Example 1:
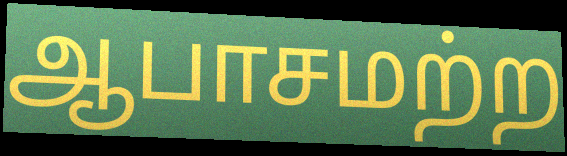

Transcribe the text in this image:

ஆபாசமற்ற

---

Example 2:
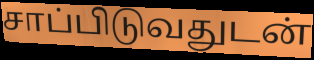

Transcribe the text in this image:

சாப்பிடுவதுடன்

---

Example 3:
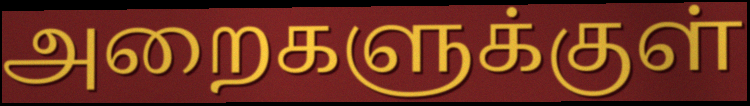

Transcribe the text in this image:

அறைகளுக்குள்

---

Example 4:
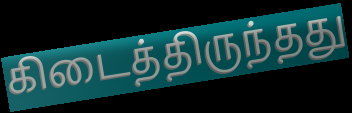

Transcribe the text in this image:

கிடைத்திருந்தது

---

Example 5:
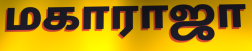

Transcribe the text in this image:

மகாராஜா